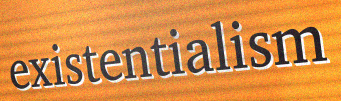
existentialism